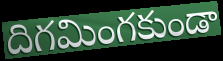
దిగమింగకుండా